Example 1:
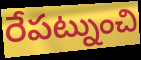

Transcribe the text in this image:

రేపట్నుంచి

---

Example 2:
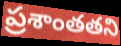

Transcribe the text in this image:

ప్రశాంతతని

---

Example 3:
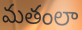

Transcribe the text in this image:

మతంలా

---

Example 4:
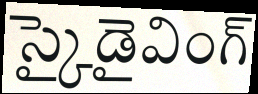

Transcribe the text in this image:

స్కైడైవింగ్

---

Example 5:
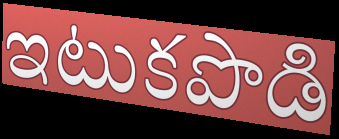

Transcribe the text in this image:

ఇటుకపొడి